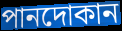
পানদোকান